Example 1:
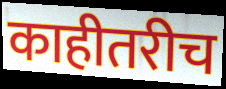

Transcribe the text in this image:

काहीतरीच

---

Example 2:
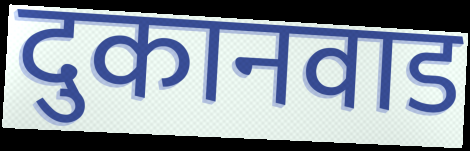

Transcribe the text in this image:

दुकानवाड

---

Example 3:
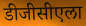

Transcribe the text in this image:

डीजीसीएला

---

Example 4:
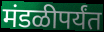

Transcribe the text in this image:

मंडळीपर्यंत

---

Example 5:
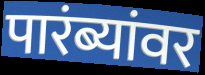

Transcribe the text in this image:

पारंब्यांवर